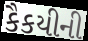
કૈકયીની